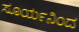
ಸೂರ್ಯನಿಂದ